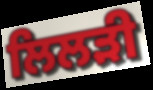
ਲਿਲੜੀ